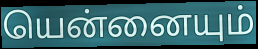
யென்னையும்